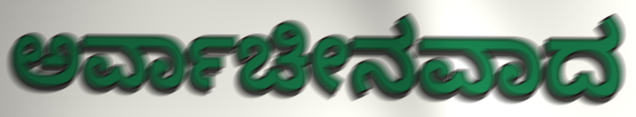
ಅರ್ವಾಚೀನವಾದ